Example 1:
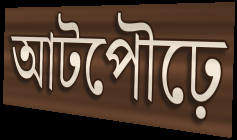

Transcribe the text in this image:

আটপৌঢ়ে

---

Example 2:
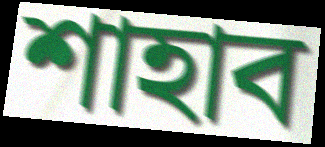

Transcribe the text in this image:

শাহাব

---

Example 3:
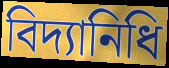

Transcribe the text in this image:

বিদ্যানিধি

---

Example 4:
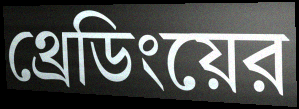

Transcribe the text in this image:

থ্রেডিংয়ের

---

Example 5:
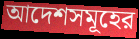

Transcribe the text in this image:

আদেশসমূহের